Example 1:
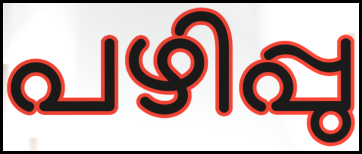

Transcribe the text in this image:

പഴിപ്പു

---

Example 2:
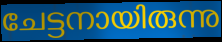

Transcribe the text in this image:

ചേട്ടനായിരുന്നു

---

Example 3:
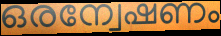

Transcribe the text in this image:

ഒരന്വേഷണം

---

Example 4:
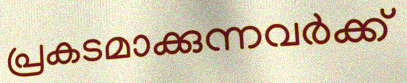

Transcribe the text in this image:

പ്രകടമാക്കുന്നവർക്ക്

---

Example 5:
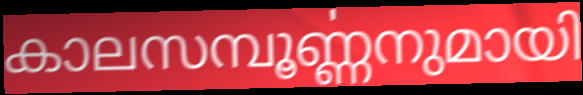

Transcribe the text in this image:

കാലസമ്പൂൎണ്ണനുമായി